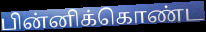
பின்னிக்கொண்ட